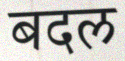
बदल